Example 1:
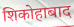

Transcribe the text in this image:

शिकोहाबाद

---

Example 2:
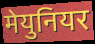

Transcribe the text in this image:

मेयुनियर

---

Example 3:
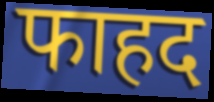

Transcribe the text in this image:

फाहद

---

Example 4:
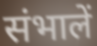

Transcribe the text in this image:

संभालें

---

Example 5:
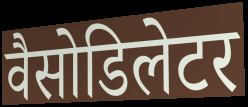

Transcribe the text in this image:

वैसोडिलेटर